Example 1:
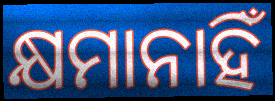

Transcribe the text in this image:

କ୍ଷମାନାହିଁ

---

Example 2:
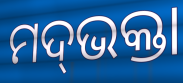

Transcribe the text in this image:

ମଦ୍‌ଭକ୍ତା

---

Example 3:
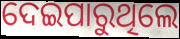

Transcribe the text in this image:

ଦେଇପାରୁଥିଲେ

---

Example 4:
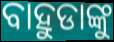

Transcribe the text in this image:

ବାହୁଡାଙ୍କୁ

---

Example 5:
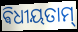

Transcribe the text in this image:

ଵିଧୀୟତାମ୍